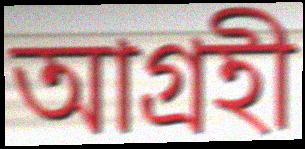
আগ্ৰহী